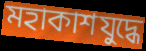
মহাকাশযুদ্ধে